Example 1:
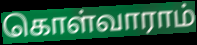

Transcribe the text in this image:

கொள்வாராம்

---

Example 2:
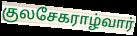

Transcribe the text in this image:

குலசேகராழ்வார்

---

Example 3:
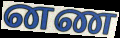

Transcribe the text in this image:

னண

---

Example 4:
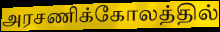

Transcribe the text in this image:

அரசணிக்கோலத்தில்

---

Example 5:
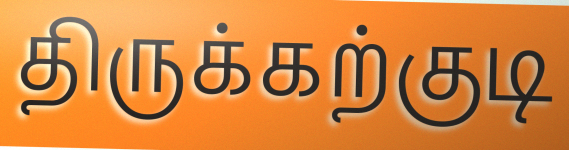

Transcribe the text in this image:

திருக்கற்குடி